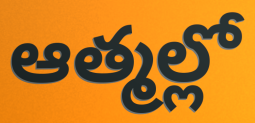
ఆత్మల్లో